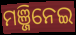
ମଞ୍ଜିନେଇ